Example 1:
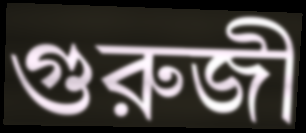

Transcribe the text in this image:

গুরুজী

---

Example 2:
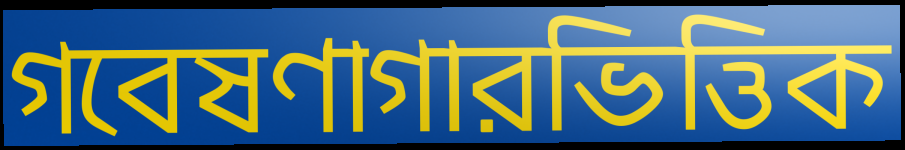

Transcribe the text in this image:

গবেষণাগারভিত্তিক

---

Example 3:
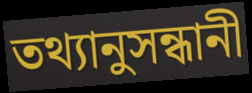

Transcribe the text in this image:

তথ্যানুসন্ধানী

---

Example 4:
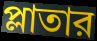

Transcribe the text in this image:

প্লাতার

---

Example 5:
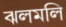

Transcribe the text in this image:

ঝলমলি